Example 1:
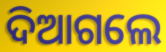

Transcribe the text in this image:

ଦିଆଗଲେ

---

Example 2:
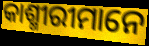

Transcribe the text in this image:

କାଶ୍ମୀରୀମାନେ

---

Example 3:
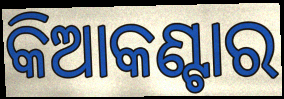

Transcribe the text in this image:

କିଆକଣ୍ଟାର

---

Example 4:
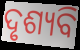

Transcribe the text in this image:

ଦୃଶ୍ୟବି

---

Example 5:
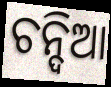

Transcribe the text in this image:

ଚନ୍ଦିଆ